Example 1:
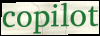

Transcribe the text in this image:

copilot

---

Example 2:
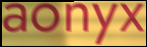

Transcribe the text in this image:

aonyx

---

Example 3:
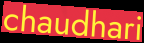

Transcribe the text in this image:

chaudhari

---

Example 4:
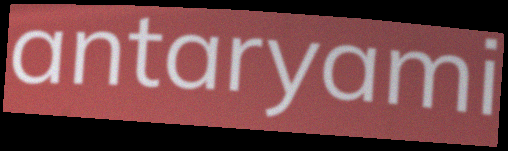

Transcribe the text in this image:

antaryami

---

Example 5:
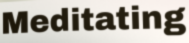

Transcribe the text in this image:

Meditating